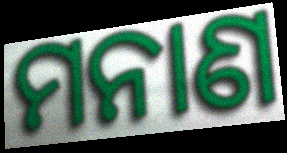
ମନାଣ